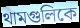
থামগুলিকে